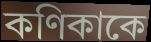
কণিকাকে